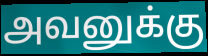
அவனுக்கு